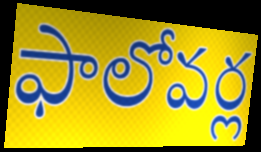
ఫాలోవర్ల